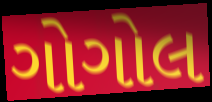
ગોગોલ